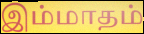
இம்மாதம்